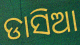
ଡାସିଆ